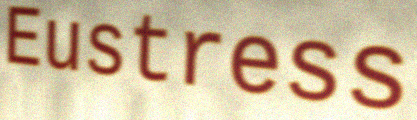
Eustress